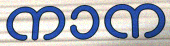
നാന